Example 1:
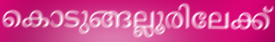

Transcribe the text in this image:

കൊടുങ്ങല്ലൂരിലേക്ക്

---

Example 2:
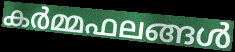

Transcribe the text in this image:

കർമ്മഫലങ്ങൾ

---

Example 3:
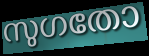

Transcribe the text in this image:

സുഗതോ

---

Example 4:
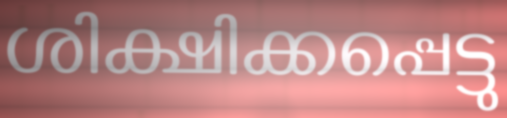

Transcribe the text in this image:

ശിക്ഷിക്കപ്പെട്ടു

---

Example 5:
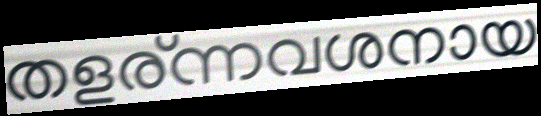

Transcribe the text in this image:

തളര്ന്നവശനായ